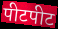
पीटपीट